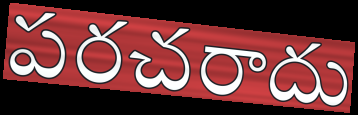
పరచరాదు